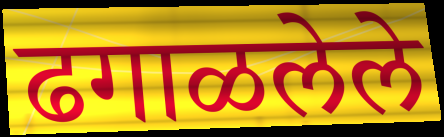
ढगाळलेले